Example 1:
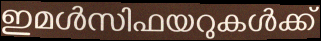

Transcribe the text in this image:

ഇമൾസിഫയറുകൾക്ക്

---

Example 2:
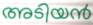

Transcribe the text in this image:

അടിയൻ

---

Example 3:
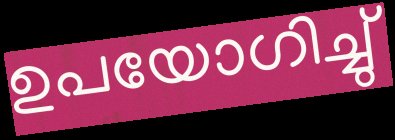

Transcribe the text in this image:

ഉപയോഗിച്ചു്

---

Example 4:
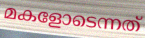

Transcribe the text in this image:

മകളോടെന്നത്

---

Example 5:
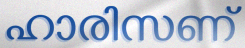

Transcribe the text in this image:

ഹാരിസണ്